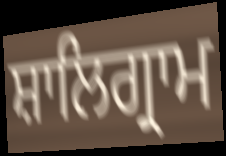
ਸ਼ਾਲਿਗ੍ਰਾਮ